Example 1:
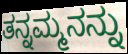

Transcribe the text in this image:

ತನ್ನಮ್ಮನನ್ನು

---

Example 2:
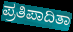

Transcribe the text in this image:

ಪ್ರತಿಪಾದಿತಾ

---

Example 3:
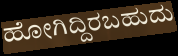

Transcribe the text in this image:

ಹೋಗಿದ್ದಿರಬಹುದು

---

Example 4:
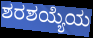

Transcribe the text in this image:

ಶರಶಯ್ಯೆಯ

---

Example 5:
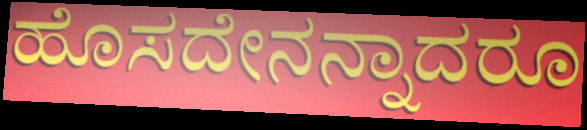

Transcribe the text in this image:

ಹೊಸದೇನನ್ನಾದರೂ